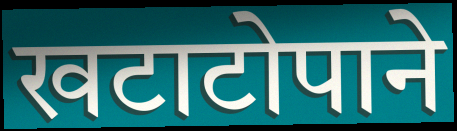
खटाटोपाने